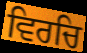
ਵਿਰਚਿ